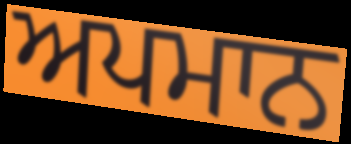
ਅਪਮਾਨ